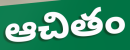
ఆచితం